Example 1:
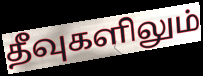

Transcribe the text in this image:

தீவுகளிலும்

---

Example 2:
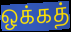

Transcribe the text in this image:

ஒக்கத்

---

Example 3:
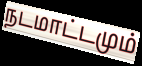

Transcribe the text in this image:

நடமாட்டமும்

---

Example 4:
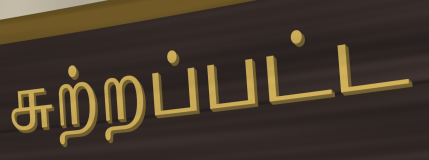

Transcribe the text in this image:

சுற்றப்பட்ட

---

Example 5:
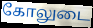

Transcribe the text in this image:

கோலுடை